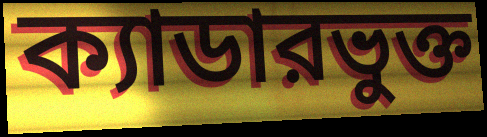
ক্যাডারভুক্ত